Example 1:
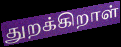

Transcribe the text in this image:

துறக்கிறாள்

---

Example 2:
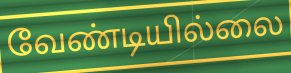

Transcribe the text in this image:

வேண்டியில்லை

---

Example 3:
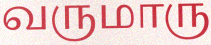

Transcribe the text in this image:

வருமாரு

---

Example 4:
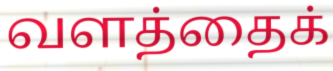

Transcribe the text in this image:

வளத்தைக்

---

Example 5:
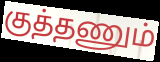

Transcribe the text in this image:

குத்தணும்